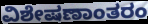
ವಿಶೇಷಣಾಂತರಂ